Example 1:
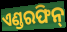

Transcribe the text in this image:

ଏଣ୍ଡରଫିନ୍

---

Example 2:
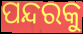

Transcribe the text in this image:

ପନ୍ଦରକୁ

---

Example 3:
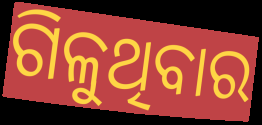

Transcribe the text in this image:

ଗିଳୁଥିବାର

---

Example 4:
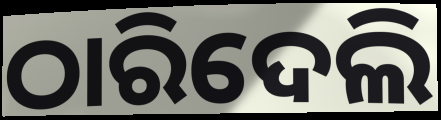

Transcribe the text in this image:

ଠାରିଦେଲି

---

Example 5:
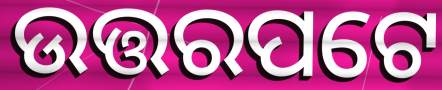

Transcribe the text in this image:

ଉତ୍ତରପଟେ